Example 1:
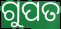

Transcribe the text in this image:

ଗୁପତ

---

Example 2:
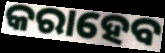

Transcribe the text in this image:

କରାହେବ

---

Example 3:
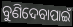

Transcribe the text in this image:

ବୁଣିଦେବାପାଇଁ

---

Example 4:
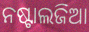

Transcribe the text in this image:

ନଷ୍ଟାଲଜିଆ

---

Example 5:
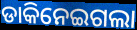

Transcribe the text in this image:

ଡାକିନେଇଗଲା